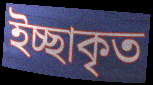
ইচ্ছাকৃত